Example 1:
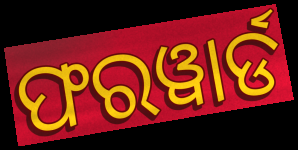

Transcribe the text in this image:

ଫରୱାର୍ଡ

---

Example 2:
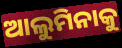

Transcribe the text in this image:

ଆଲୁମିନାକୁ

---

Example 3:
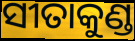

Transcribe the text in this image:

ସୀତାକୁଣ୍ଡ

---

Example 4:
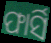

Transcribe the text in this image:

ଫାର୍ସି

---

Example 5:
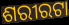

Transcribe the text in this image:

ଶରୀରଟା